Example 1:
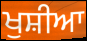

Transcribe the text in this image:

ਖੁਸ਼ੀਆ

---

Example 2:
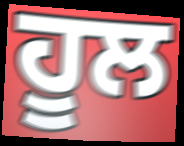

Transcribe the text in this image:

ਹੂਲ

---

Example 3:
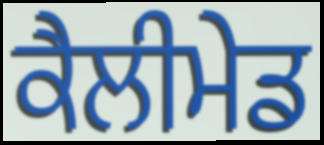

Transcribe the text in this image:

ਕੈਲੀਮੇਡ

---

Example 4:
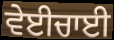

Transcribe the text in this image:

ਵੇਈਚਾਈ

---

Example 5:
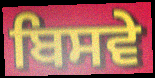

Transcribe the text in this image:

ਬਿਸਵੇ